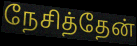
நேசித்தேன்